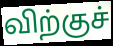
விற்குச்